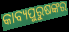
କାବ୍ୟପୁରୁଷଙ୍କର